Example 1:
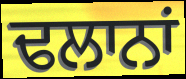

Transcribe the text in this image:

ਢਲਾਨਾਂ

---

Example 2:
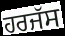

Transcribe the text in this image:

ਹਰਜੱਸ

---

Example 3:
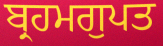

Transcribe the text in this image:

ਬ੍ਰਹਮਗੁਪਤ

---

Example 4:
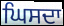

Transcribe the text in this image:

ਘਿਸਦਾ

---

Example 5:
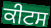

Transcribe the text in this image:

ਕੀਟਸ